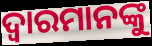
ଦ୍ୱାରମାନଙ୍କୁ